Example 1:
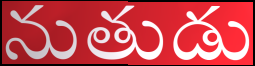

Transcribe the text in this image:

నుతుడు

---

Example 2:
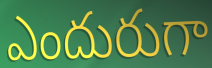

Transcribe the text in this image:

ఎందురుగా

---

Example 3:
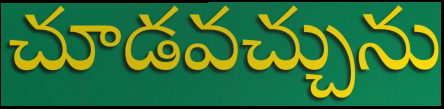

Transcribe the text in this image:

చూడవచ్చును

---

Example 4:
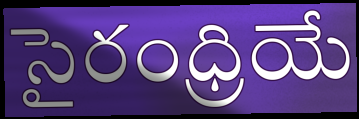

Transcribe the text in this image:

సైరంధ్రియే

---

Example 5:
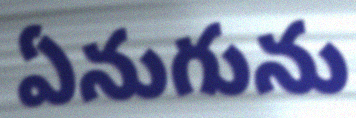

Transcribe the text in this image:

ఏనుగును